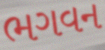
ભગવન